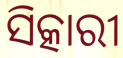
ସିତ୍କାରୀ